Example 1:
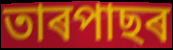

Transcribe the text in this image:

তাৰপাছৰ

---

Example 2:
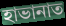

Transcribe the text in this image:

হাভানাত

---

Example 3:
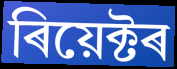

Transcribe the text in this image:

ৰিয়েক্টৰ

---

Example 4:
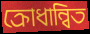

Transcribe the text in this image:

ক্ৰোধান্বিত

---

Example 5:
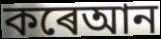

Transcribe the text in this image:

কৰেআন